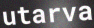
utarva